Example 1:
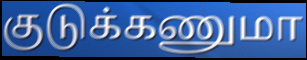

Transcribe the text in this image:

குடுக்கணுமா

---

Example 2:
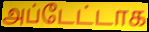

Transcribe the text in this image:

அப்டேட்டாக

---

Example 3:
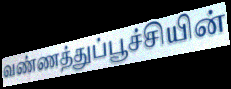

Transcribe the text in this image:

வண்ணத்துப்பூச்சியின்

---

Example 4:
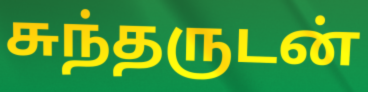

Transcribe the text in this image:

சுந்தருடன்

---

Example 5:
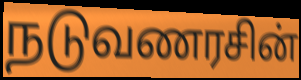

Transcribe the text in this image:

நடுவணரசின்